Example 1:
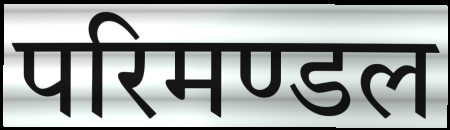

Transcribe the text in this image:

परिमण्डल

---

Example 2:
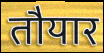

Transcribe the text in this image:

तौयार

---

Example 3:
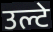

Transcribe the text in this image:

उल्टे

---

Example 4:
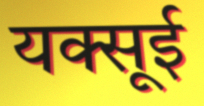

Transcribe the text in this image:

यक्सूई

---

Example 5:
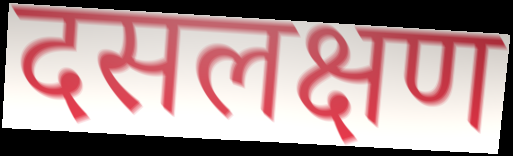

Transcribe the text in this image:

दसलक्षण